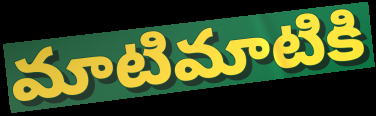
మాటిమాటికి